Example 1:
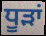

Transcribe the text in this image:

ਧੂਡ਼ਾਂ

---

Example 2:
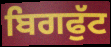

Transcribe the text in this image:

ਬਿਗਫੁੱਟ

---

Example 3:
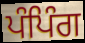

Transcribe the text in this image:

ਪੰਪਿੰਗ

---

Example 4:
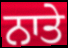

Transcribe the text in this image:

ਨਾਤੇ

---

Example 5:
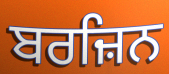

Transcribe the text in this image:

ਬਰਜ਼ਿਨ